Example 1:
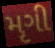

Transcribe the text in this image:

મૃગી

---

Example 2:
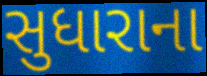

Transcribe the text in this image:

સુધારાના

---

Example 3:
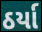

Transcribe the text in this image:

ઠર્યા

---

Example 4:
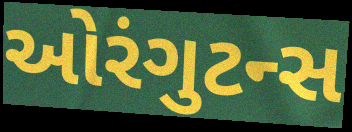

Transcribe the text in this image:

ઓરંગુટન્સ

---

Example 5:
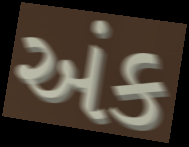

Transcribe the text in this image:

અંક